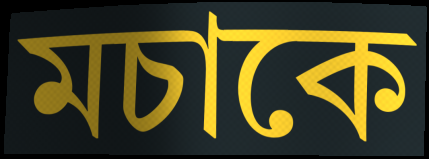
মচাকে